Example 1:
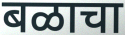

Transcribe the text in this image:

बळाचा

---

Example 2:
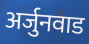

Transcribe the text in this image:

अर्जुनवाड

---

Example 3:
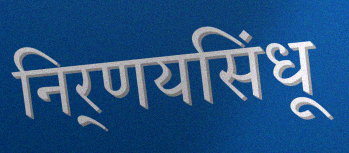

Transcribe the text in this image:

निर्णयसिंधू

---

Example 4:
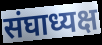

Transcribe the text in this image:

संघाध्यक्ष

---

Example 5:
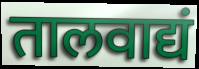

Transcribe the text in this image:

तालवाद्यं